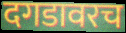
दगडावरच